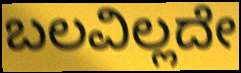
ಬಲವಿಲ್ಲದೇ